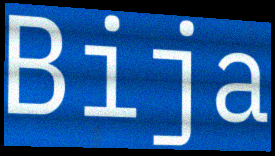
Bija